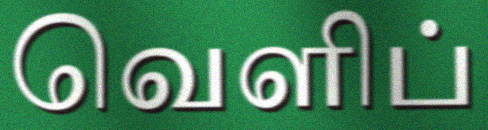
வெளிப்